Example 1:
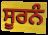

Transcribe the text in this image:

ਸੂਰਨੰ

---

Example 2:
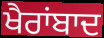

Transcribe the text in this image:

ਖੈਰਾਂਬਾਦ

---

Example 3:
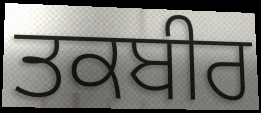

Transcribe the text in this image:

ਤਕਬੀਰ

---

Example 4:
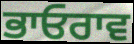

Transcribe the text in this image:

ਭਾਓਰਾਵ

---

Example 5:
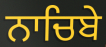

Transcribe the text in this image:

ਨਾਚਿਬੇ